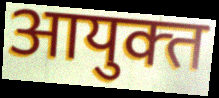
आयुक्‍त